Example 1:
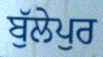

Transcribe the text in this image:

ਬੁੱਲੇਪੁਰ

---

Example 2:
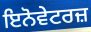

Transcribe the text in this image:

ਇਨੋਵੇਟਰਜ਼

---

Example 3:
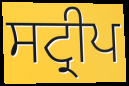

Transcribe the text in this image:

ਸਟ੍ਰੀਪ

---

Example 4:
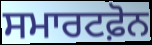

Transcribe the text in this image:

ਸਮਾਰਟਫ਼ੋਨ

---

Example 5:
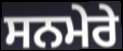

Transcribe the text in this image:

ਸਨਮੇਰੇ